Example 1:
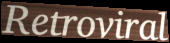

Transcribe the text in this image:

Retroviral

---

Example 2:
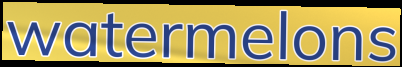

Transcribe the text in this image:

watermelons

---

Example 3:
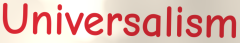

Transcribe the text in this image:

Universalism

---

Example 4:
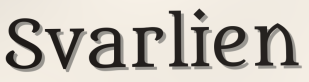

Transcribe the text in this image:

Svarlien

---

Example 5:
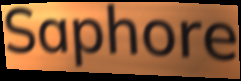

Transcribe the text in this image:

Saphore